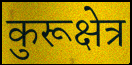
कुरूक्षेत्र